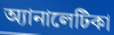
অ্যানালেটিকা